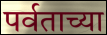
पर्वताच्या